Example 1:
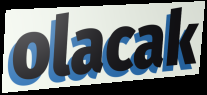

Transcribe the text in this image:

olacak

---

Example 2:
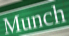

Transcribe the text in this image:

Munch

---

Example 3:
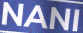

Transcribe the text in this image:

NANI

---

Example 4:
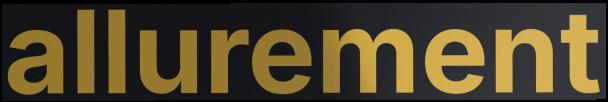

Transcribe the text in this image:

allurement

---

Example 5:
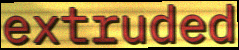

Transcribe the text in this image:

extruded